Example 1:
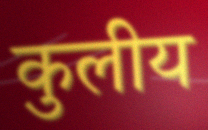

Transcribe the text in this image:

कुलीय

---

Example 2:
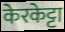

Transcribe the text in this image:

केरकेट्टा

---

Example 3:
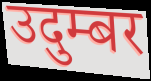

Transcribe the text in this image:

उदुम्बर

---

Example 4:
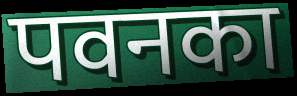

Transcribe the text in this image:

पवनका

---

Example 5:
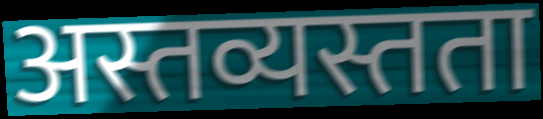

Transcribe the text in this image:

अस्तव्यस्तता